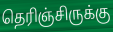
தெரிஞ்சிருக்கு